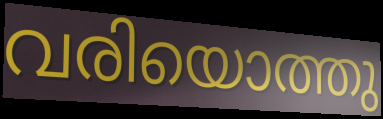
വരിയൊത്തു